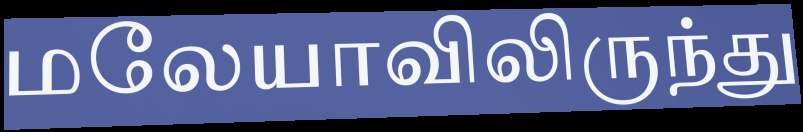
மலேயாவிலிருந்து